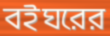
বইঘরের